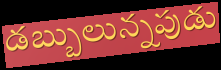
డబ్బులున్నపుడు